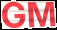
GM